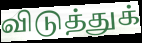
விடுத்துக்